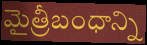
మైత్రీబంధాన్ని